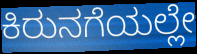
ಕಿರುನಗೆಯಲ್ಲೇ